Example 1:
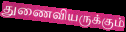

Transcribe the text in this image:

துணைவியருக்கும்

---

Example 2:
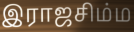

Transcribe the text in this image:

இராஜசிம்ம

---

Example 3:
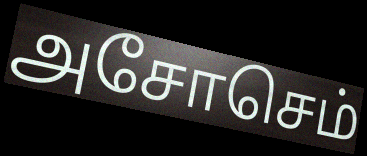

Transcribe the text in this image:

அசோசெம்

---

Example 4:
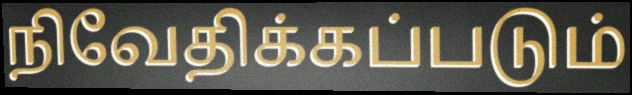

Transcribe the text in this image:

நிவேதிக்கப்படும்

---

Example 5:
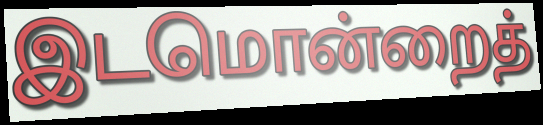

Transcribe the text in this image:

இடமொன்றைத்